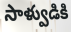
సాళ్వుడికి